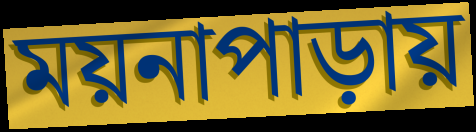
ময়নাপাড়ায়